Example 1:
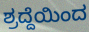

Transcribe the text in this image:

ಶ್ರದ್ದೆಯಿಂದ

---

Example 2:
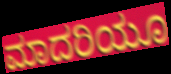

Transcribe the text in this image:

ಮಾದರಿಯೂ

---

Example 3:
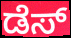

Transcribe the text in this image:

ಡೆಸ್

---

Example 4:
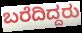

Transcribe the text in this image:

ಬರೆದಿದ್ದರು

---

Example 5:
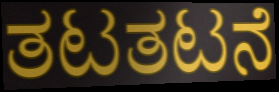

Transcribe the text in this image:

ತಟತಟನೆ